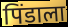
पिंडाला